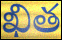
ఖిత